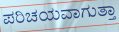
ಪರಿಚಯವಾಗುತ್ತಾ